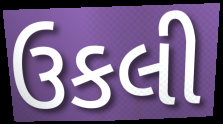
ઉકલી